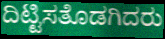
ದಿಟ್ಟಿಸತೊಡಗಿದರು